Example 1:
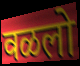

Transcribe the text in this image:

वळलो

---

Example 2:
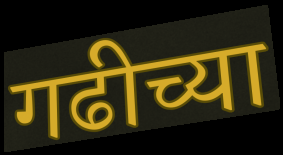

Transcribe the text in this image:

गढीच्या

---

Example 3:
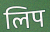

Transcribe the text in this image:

लिप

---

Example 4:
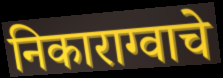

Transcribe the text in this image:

निकाराग्वाचे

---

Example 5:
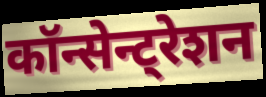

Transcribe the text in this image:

कॉन्सेन्ट्रेशन